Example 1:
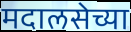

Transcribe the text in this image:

मदालसेच्या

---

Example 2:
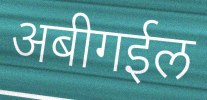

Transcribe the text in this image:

अबीगईल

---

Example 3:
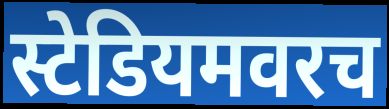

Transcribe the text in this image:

स्टेडियमवरच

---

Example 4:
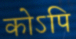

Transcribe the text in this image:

कोऽपि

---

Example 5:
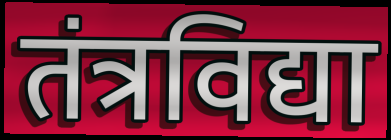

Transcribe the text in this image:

तंत्रविद्या